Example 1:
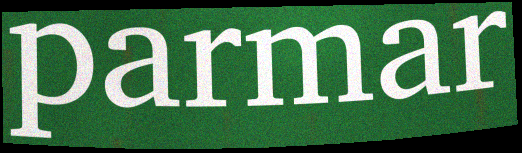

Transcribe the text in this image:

parmar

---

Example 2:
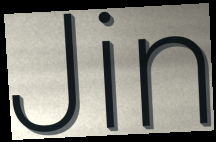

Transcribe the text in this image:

Jin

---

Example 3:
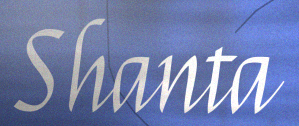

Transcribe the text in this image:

Shanta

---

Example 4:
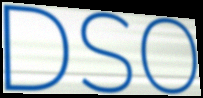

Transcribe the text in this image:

DSO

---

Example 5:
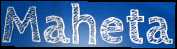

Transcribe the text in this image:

Maheta